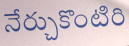
నేర్చుకొంటిరి